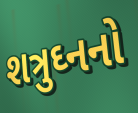
શત્રુઘ્નનો